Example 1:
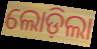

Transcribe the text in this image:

ଲୋଡ଼ିଲା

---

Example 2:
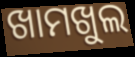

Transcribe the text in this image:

ଖାମଖୁଲ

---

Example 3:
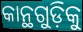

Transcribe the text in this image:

କାନ୍ଥଗୁଡ଼ିକୁ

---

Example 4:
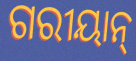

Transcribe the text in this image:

ଗରୀୟାନ୍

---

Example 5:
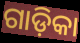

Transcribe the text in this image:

ଗାଡ଼ିକା